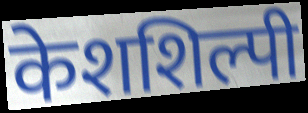
केशशिल्पी